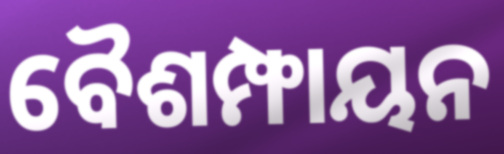
ବୈଶମ୍ଫାୟନ